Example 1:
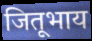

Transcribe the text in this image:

जितूभाय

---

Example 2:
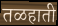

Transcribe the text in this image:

तळहाती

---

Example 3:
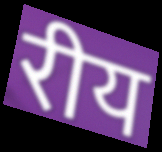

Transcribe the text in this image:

रीय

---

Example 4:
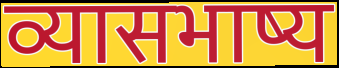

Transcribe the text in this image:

व्यासभाष्य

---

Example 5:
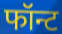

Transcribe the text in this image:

फॉन्ट